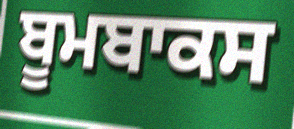
ਬੂਮਬਾਕਸ